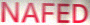
NAFED